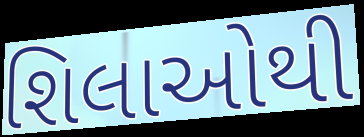
શિલાઓથી